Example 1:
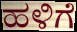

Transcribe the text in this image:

ಹಳಿಗೆ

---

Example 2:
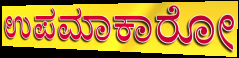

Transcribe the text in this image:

ಉಪಮಾಕಾರೋ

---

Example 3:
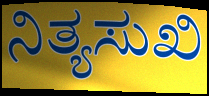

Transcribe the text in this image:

ನಿತ್ಯಸುಖಿ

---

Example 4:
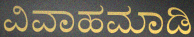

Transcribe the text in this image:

ವಿವಾಹಮಾಡಿ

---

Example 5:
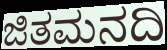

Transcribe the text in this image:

ಜಿತಮನದಿ